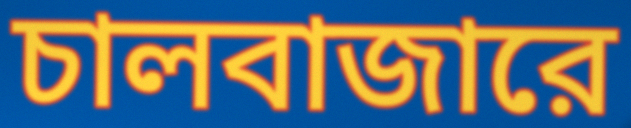
চালবাজারে